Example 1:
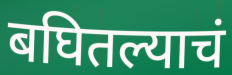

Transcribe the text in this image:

बघितल्याचं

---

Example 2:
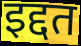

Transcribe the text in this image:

इद्दत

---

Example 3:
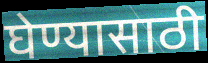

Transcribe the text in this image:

घेण्यासाठी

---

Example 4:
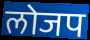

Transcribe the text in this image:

लोजप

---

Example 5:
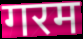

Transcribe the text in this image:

गरम